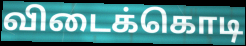
விடைக்கொடி